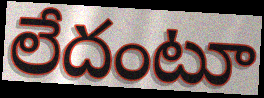
లేదంటూ